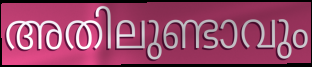
അതിലുണ്ടാവും